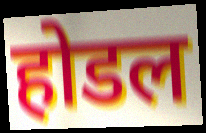
होडल